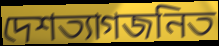
দেশত্যাগজনিত